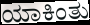
ಯಾಕಿಂತು